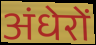
अंधेरों